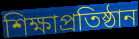
শিক্ষাপ্রতিষ্ঠান